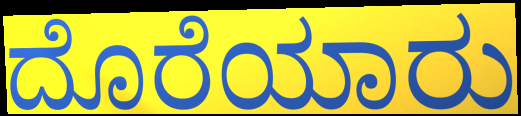
ದೊರೆಯಾರು